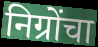
निग्रोंचा